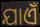
ଯାଏଁ